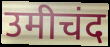
उमीचंद